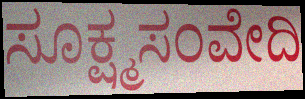
ಸೂಕ್ಷ್ಮಸಂವೇದಿ